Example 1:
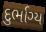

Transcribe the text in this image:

દુર્ભાગ્ય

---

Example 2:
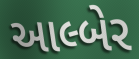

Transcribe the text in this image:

આલ્બેર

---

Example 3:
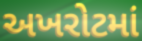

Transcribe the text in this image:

અખરોટમાં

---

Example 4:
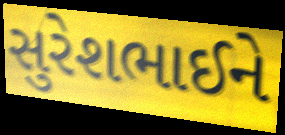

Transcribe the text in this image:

સુરેશભાઈને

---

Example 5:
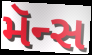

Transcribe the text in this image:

મૅન્સ